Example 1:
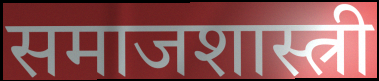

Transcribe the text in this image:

समाजशास्त्री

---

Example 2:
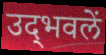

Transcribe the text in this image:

उद्‍भवलें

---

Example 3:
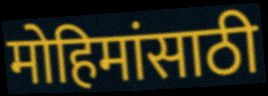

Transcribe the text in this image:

मोहिमांसाठी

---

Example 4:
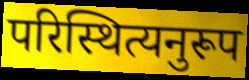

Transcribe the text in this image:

परिस्थित्यनुरूप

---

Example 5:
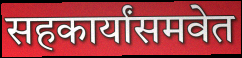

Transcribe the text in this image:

सहकार्यांसमवेत